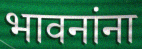
भावनांना